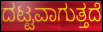
ದಟ್ಟವಾಗುತ್ತದೆ